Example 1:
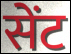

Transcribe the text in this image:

सेंट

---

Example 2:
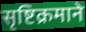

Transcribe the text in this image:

सृष्टिक्रमाने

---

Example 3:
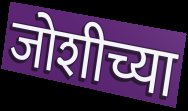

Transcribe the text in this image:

जोशीच्या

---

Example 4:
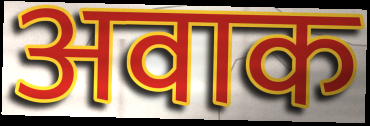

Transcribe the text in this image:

अवाक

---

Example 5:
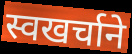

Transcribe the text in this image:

स्वखर्चाने